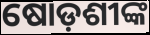
ଷୋଡ଼ଶୀଙ୍କ